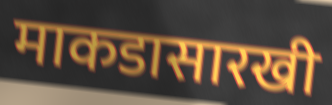
माकडासारखी